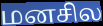
மனசில